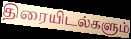
திரையிடல்களும்